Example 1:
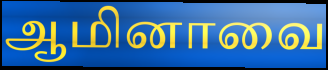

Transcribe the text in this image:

ஆமினாவை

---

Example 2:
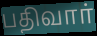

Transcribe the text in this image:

பதிவார்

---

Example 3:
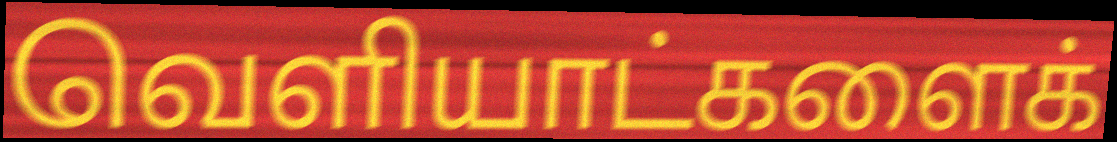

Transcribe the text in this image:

வெளியாட்களைக்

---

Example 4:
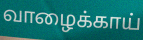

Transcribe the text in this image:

வாழைக்காய்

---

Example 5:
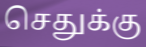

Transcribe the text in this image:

செதுக்கு